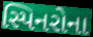
સ્પિનરોના